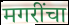
मगरींचा